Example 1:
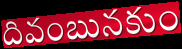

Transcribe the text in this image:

దివంబునకుం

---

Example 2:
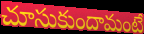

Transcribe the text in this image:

చూసుకుందామంటే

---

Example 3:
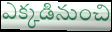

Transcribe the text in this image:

ఎక్కడినుంచి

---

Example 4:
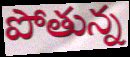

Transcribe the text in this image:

పోతున్న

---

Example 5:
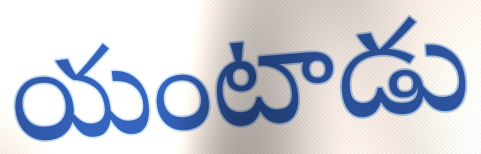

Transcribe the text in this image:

యంటాడు